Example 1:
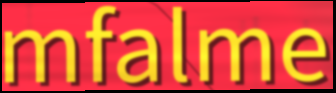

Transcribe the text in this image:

mfalme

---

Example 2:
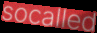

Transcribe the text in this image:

socalled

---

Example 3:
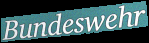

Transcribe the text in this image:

Bundeswehr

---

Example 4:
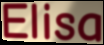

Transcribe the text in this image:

Elisa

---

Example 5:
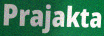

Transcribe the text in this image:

Prajakta